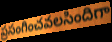
ప్రసంగించవలసిందిగా